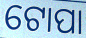
ଟୋପା